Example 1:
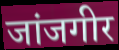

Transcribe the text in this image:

जांजगीर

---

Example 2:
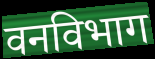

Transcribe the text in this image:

वनविभाग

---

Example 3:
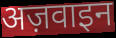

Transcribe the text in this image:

अज़वाइन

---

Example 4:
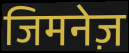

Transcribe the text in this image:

जिमनेज़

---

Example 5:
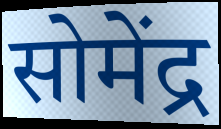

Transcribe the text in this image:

सोमेंद्र